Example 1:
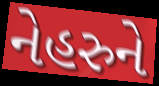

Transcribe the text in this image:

નેહરુને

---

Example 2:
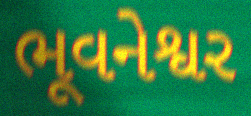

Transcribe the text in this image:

ભૂવનેશ્વર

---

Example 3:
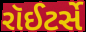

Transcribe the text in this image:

રૉઈટર્સે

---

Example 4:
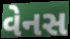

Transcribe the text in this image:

વેનસ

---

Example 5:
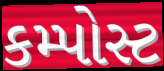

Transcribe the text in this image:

કમ્પોસ્ટ